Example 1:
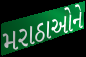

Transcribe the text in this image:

મરાઠાઓને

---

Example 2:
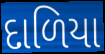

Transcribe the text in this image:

દાળિયા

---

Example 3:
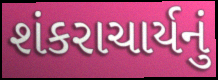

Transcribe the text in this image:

શંકરાચાર્યનું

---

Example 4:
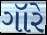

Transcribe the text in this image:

ગૉરે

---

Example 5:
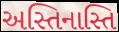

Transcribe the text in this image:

અસ્તિનાસ્તિ